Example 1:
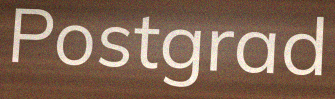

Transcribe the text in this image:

Postgrad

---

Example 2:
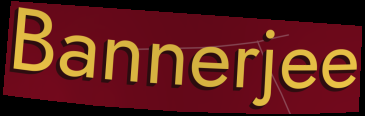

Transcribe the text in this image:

Bannerjee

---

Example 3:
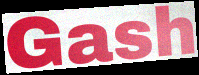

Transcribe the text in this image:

Gash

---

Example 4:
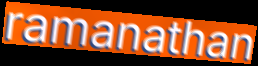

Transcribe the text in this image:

ramanathan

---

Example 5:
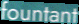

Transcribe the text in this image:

fountant